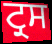
ਟ੍ਰਸ